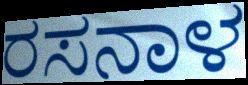
ರಸನಾಳ